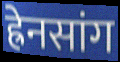
ह्रेनसांग